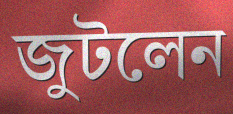
জুটলেন